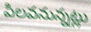
పిలవనున్నట్లు